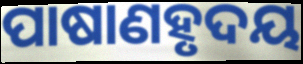
ପାଷାଣହୃଦୟ